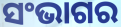
ସଂଭାଗର